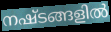
നഷ്ടങ്ങളിൽ